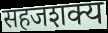
सहजशक्य